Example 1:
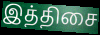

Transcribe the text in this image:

இத்திசை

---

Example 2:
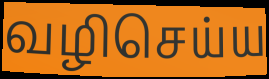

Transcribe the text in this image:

வழிசெய்ய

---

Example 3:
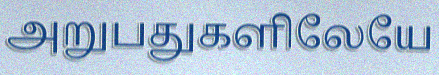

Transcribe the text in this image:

அறுபதுகளிலேயே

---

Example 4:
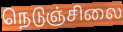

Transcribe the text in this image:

நெடுஞ்சிலை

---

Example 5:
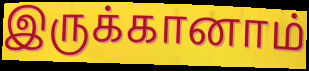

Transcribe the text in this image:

இருக்கானாம்